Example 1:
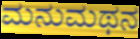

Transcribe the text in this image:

ಮನುಮಥನ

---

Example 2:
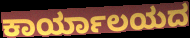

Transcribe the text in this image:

ಕಾರ್ಯಾಲಯದ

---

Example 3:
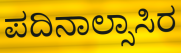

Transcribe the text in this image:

ಪದಿನಾಲ್ಸಾಸಿರ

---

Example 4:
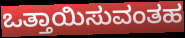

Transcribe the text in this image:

ಒತ್ತಾಯಿಸುವಂತಹ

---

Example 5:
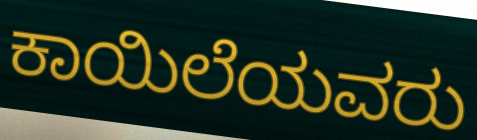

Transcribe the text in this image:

ಕಾಯಿಲೆಯವರು